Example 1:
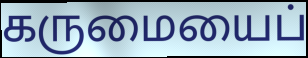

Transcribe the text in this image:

கருமையைப்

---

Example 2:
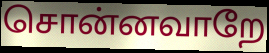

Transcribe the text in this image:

சொன்னவாறே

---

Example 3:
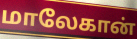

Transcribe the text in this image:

மாலேகான்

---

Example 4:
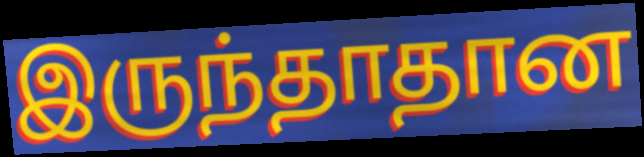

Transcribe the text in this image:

இருந்தாதான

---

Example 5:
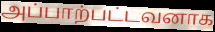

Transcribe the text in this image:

அப்பாற்பட்டவனாக